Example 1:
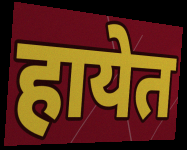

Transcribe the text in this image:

हायेत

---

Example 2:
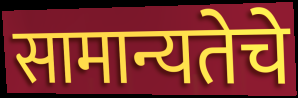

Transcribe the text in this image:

सामान्यतेचे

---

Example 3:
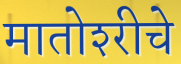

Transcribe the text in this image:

मातोश्रीचे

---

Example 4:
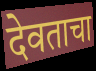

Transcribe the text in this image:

देवताचा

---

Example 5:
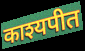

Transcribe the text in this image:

काश्यपीत